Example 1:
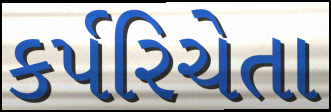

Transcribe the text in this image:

કર્પરિચેતા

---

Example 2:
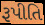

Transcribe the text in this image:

રૂપીતિ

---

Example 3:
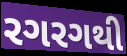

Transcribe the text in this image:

રગરગથી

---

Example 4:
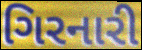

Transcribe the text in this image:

ગિરનારી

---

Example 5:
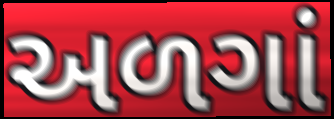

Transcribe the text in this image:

અળગાં